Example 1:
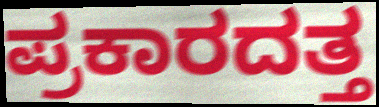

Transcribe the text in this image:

ಪ್ರಕಾರದತ್ತ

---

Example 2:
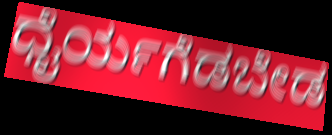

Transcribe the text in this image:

ಧೈರ್ಯಗೆಡಬೇಡ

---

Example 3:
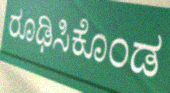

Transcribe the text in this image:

ರೂಢಿಸಿಕೊಂಡ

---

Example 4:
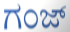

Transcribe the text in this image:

ಗಂಜ್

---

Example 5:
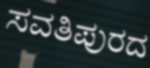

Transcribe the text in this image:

ಸವತಿಪುರದ